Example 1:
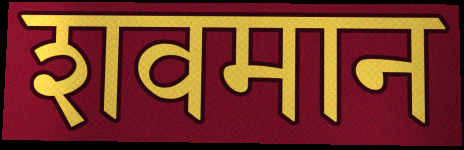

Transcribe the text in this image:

शवमान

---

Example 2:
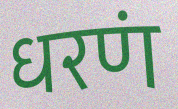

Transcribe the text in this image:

धरणं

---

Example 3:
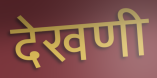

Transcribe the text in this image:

देखणी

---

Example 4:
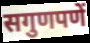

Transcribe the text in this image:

सगुणपणें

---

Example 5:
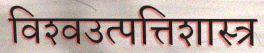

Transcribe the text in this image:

विश्वउत्पत्तिशास्त्र